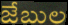
జేబుల